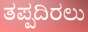
ತಪ್ಪದಿರಲು